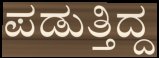
ಪಡುತ್ತಿದ್ದ